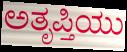
ಅತೃಪ್ತಿಯು